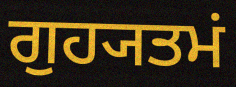
ਗੁਹ੍ਯਤਮਂ